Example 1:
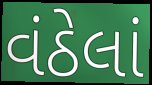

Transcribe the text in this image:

વંઠેલાં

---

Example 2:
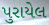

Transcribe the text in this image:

પુરાયેલ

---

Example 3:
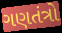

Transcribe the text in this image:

ગણતંત્રો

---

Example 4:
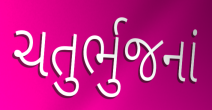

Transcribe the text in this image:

ચતુર્ભુજનાં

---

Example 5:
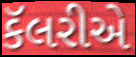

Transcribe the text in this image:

કૅલરીએ